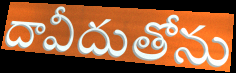
దావీదుతోను